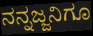
ನನ್ನಜ್ಜನಿಗೂ